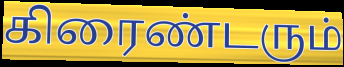
கிரைண்டரும்